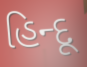
હિન્દૂ